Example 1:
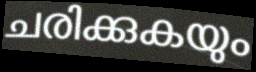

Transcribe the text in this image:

ചരിക്കുകയും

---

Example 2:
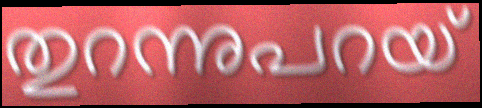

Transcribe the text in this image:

തുറന്നുപറയ്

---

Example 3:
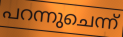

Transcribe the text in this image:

പറന്നുചെന്ന്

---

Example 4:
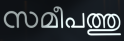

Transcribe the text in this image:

സമീപത്തു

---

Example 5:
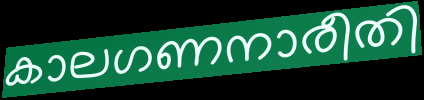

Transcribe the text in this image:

കാലഗണനാരീതി